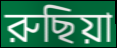
ৰুছিয়া